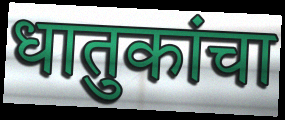
धातुकांचा